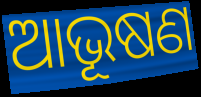
ଆଭୂଷଣ